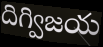
దిగ్విజయ